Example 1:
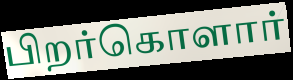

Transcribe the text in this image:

பிறர்கொளார்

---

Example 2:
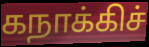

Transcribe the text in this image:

கநாக்கிச்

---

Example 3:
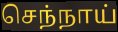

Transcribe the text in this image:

செந்நாய்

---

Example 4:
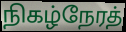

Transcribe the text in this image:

நிகழ்நேரத்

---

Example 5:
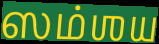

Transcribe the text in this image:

ஸம்ஶய